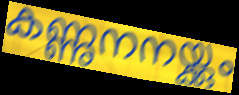
കണ്ണുനനയ്ക്കും